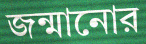
জন্মানোর